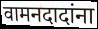
वामनदादांना